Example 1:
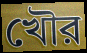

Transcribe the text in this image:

খৌর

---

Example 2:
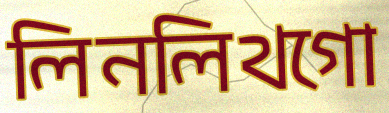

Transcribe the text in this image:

লিনলিথগো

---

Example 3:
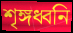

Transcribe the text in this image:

শৃঙ্গধ্বনি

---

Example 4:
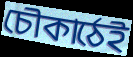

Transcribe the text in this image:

চৌকাঠেই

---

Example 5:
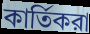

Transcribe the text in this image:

কার্তিকরা